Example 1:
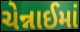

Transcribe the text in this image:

ચેન્નાઈમાં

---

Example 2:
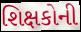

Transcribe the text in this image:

શિક્ષકોની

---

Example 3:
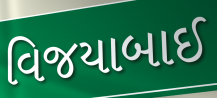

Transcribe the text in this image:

વિજયાબાઈ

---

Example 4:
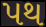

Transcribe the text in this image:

પથ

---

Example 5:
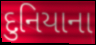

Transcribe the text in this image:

દુનિયાના